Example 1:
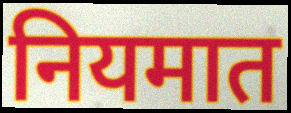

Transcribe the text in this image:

नियमात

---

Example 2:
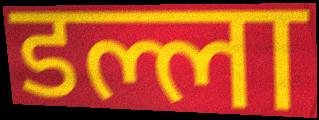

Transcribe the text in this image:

डल्ला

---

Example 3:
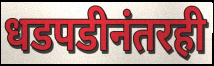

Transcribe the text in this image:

धडपडीनंतरही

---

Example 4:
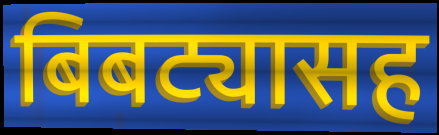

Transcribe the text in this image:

बिबट्यासह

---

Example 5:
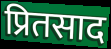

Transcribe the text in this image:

प्रितसाद